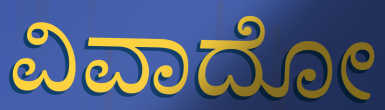
ವಿವಾದೋ